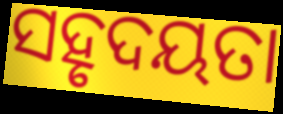
ସହୃଦୟତା